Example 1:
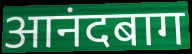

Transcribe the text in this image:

आनंदबाग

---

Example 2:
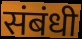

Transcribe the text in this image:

संबंधी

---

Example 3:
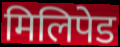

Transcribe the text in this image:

मिलिपेड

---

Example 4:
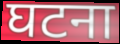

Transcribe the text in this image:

घटना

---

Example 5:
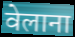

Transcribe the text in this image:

वेलाना